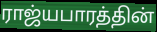
ராஜ்யபாரத்தின்